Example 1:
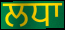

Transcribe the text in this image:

ਲਧਾ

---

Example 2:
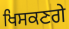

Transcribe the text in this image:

ਖਿਸਕਣਗੇ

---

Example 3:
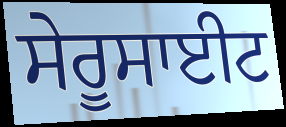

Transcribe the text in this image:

ਸੇਰੂਸਾਈਟ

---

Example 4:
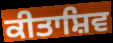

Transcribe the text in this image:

ਕੀਤਾਸ਼ਿਵ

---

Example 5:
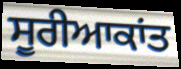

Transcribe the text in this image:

ਸੂਰੀਆਕਾਂਤ